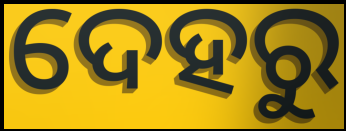
ଦେହରୁ